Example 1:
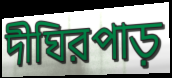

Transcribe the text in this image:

দীঘিরপাড়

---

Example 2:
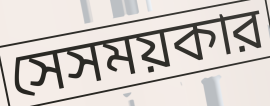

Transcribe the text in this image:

সেসময়কার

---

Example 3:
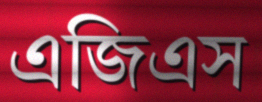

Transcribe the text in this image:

এজিএস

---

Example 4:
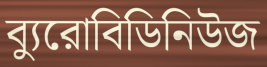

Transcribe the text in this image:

ব্যুরোবিডিনিউজ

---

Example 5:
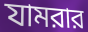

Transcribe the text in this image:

যামরার